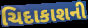
ચિદાકાશની